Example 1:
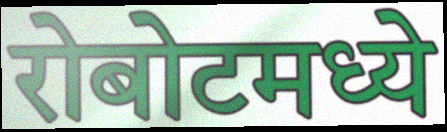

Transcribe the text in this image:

रोबोटमध्ये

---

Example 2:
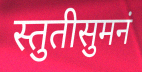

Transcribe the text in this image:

स्तुतीसुमनं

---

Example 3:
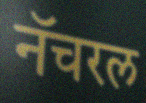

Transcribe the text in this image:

नॅचरल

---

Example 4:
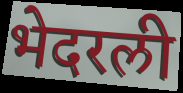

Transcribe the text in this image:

भेदरली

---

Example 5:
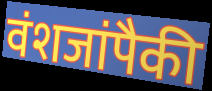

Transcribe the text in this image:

वंशजांपैकी